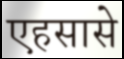
एहसासे